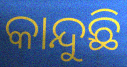
କାନ୍ଦୁଛି